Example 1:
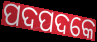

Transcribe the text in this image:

ପଦପଦକେ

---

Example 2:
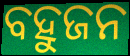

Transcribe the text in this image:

ବହୁଜନ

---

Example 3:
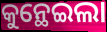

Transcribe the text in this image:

କୁନ୍ଥେଇଲା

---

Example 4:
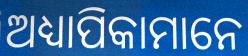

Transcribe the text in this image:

ଅଧ୍ୟାପିକାମାନେ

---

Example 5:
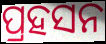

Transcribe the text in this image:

ପ୍ରହସନ